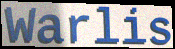
Warlis